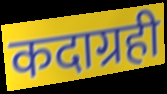
कदाग्रही